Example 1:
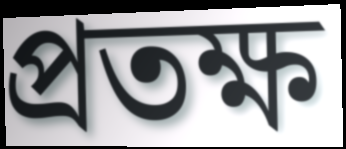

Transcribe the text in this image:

প্রতক্ষ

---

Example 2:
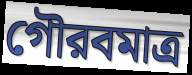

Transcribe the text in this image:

গৌরবমাত্র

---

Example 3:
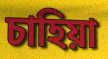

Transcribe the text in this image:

চাহিয়া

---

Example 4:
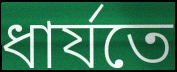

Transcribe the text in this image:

ধার্যতে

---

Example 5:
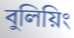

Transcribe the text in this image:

বুলিয়িং